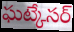
ఘట్కేసర్